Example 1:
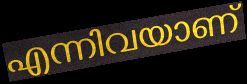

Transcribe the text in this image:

എന്നിവയാണ്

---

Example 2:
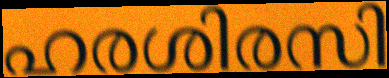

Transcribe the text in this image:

ഹരശിരസി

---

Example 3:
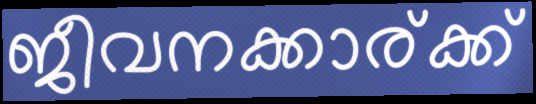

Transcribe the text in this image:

ജീവനക്കാര്ക്ക്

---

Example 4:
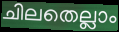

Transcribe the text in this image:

ചിലതെല്ലാം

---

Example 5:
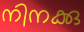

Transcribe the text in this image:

നിനക്കു